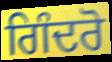
ਗਿੰਦਰੋ